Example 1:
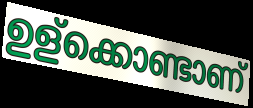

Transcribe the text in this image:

ഉള്ക്കൊണ്ടാണ്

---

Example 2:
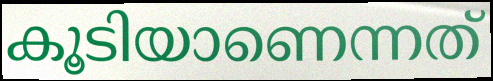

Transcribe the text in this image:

കൂടിയാണെന്നത്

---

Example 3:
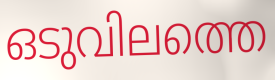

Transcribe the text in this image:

ഒടുവിലത്തെ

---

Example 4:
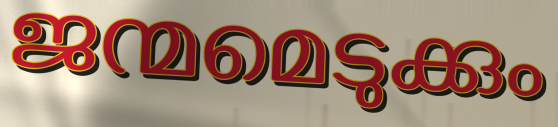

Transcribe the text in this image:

ജന്മമെടുക്കും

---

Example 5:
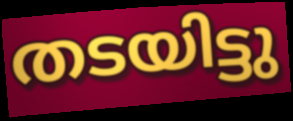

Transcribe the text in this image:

തടയിട്ടു